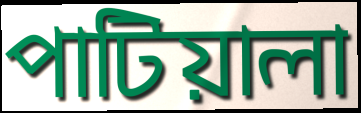
পাটিয়ালা